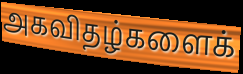
அகவிதழ்களைக்